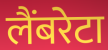
लैंबरेटा